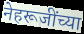
नेहरूजींच्या